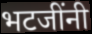
भटजींनी